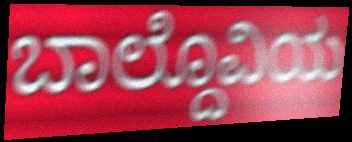
ಬಾಲ್ದೊವಿಯ